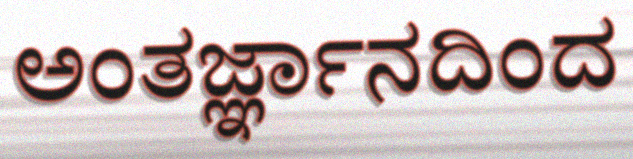
ಅಂತರ್ಜ್ಞಾನದಿಂದ